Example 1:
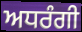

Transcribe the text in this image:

ਅਧਰੰਗੀ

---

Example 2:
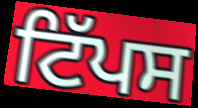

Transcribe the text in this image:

ਟਿੱਪਸ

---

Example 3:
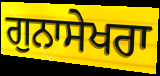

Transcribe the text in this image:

ਗੁਨਾਸੇਖਰਾ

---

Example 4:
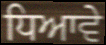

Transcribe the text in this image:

ਧਿਆਵੇ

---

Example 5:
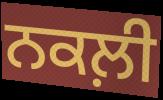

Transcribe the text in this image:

ਨਕਲ਼ੀ